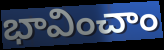
భావించాం